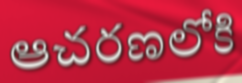
ఆచరణలోకి